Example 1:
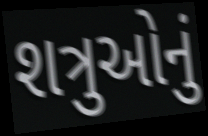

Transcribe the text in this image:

શત્રુઓનું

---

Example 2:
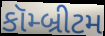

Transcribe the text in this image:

કૉમ્બ્રીટમ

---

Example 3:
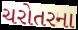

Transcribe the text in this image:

ચરોતરના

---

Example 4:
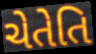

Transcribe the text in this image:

ચેતેતિ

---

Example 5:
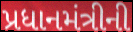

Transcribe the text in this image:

પ્રધાનમંત્રીની